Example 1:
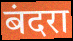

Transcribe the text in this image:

बंदरा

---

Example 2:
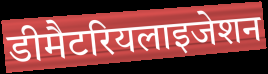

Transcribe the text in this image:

डीमैटरियलाइजेशन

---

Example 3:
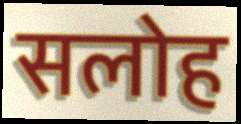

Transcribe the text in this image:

सलोह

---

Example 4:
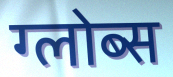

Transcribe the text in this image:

ग्लोब्स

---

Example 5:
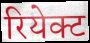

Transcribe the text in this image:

रियेक्ट